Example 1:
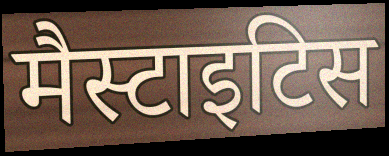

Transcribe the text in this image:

मैस्टाइटिस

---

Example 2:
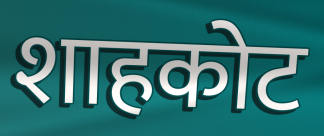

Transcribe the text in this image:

शाहकोट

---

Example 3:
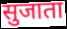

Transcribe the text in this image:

सुजाता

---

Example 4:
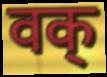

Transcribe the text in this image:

वक्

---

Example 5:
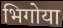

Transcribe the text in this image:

भिगोया